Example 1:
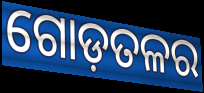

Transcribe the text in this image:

ଗୋଡ଼ତଳର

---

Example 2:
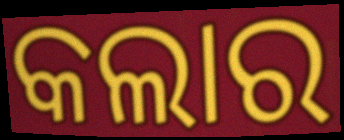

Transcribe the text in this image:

କଲାର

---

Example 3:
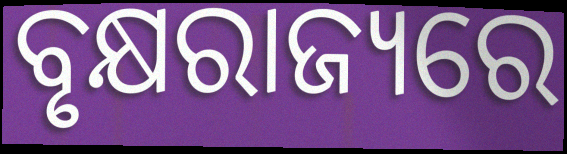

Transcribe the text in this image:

ବୃକ୍ଷରାଜ୍ୟରେ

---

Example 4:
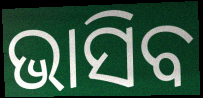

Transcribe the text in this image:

ଭାସିବ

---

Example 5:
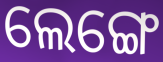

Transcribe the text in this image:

ଲେଙ୍ଗେ